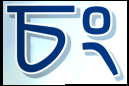
চং